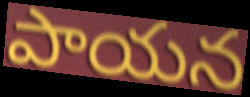
పాయన